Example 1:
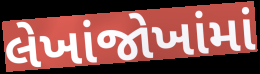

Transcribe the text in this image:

લેખાંજોખાંમાં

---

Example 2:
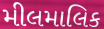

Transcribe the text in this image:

મીલમાલિક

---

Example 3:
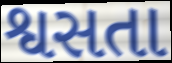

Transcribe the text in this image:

શ્વસતા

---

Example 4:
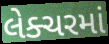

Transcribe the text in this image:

લેક્ચરમાં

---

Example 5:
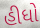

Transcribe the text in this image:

હીધો